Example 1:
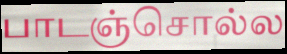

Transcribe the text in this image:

பாடஞ்சொல்ல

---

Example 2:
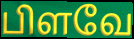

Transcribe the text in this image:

பிளவே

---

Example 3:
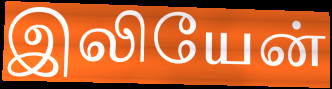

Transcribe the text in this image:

இலியேன்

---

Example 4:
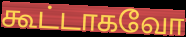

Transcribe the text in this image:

கூட்டாகவோ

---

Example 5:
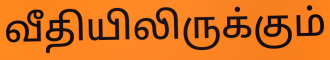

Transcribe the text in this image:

வீதியிலிருக்கும்